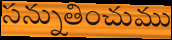
సన్నుతించుము